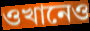
ওখানেও